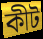
কীট